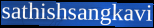
sathishsangkavi